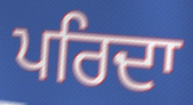
ਪਰਿਦਾ